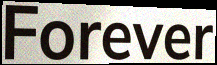
Forever